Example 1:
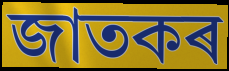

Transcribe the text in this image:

জাতকৰ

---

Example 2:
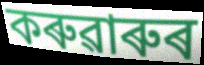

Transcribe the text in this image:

কৰুৱাৰুৰ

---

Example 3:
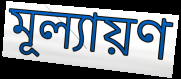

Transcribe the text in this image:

মূল্যায়ণ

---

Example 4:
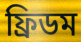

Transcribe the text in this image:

ফ্ৰিডম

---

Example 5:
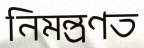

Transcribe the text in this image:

নিমন্ত্ৰণত